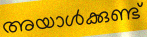
അയാൾക്കുണ്ട്